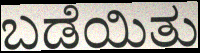
ಬಡೆಯಿತು